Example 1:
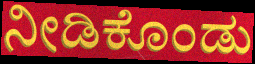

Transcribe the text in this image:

ನೀಡಿಕೊಂಡು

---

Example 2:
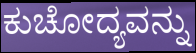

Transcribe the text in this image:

ಕುಚೋದ್ಯವನ್ನು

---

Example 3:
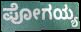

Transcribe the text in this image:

ಪೋಗಯ್ಯ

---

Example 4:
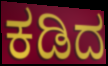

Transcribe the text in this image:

ಕಡಿದ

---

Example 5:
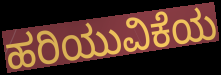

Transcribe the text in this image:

ಹರಿಯುವಿಕೆಯ